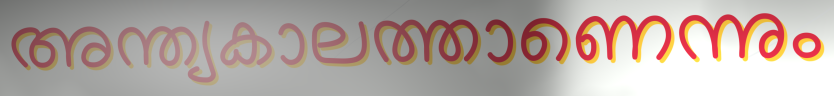
അന്ത്യകാലത്താണെന്നും